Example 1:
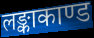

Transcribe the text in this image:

लङ्काकाण्ड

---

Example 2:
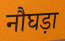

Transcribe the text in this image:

नौघड़ा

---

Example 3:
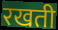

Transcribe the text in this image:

रखती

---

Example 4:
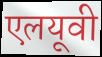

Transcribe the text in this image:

एलयूवी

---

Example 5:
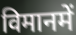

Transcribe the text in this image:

विमानमें